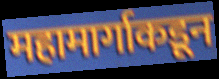
महामार्गाकडून